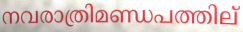
നവരാത്രിമണ്ഡപത്തില്